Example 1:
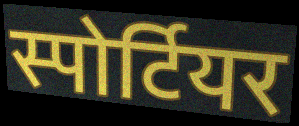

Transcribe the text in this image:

स्पोर्टियर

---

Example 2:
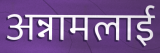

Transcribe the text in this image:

अन्नामलाई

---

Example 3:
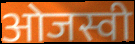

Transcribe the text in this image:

ओजस्वी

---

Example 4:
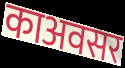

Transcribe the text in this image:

काअवसर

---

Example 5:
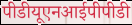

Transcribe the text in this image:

पीडीयूएनआईपीपीडी